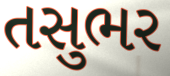
તસુભર